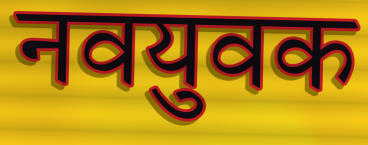
नवयुवक